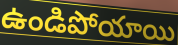
ఉండిపోయాయి